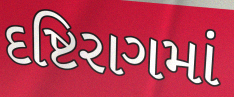
દષ્ટિરાગમાં